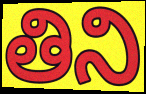
తిని